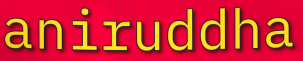
aniruddha